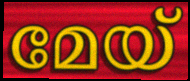
മേയ്